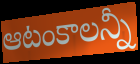
ఆటంకాలన్నీ